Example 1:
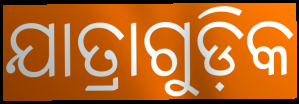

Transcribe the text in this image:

ଯାତ୍ରାଗୁଡ଼ିକ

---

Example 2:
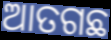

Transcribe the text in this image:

ଆତଗଛ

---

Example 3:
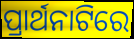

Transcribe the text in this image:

ପ୍ରାର୍ଥନାଟିରେ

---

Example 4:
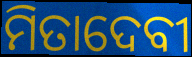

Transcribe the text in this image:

ମିତାଦେବୀ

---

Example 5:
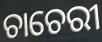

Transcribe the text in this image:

ଚାଚେରୀ